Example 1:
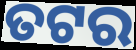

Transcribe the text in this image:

ତଟର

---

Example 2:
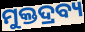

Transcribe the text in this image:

ମୁକ୍ତଦ୍ରବ୍ୟ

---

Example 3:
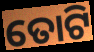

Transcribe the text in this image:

ତୋଟି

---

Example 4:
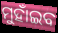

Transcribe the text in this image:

ମୁହାଁଇବ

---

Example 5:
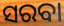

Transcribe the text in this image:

ସରବା